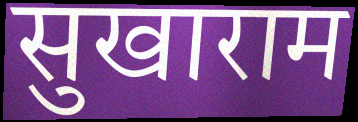
सुखाराम